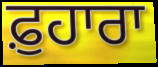
ਫ਼ੁਹਾਰਾ